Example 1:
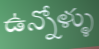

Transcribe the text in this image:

ఉన్నోళ్ళు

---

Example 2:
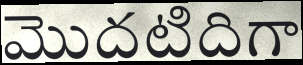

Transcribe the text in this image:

మొదటిదిగా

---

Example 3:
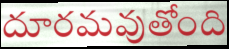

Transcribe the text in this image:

దూరమవుతోంది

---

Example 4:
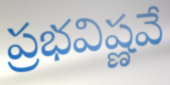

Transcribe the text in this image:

ప్రభవిష్ణవే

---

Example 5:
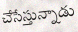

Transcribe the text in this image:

చేసేస్తున్నాడు